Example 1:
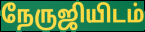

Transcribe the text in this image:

நேருஜியிடம்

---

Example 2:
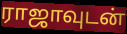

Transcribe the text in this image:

ராஜாவுடன்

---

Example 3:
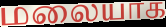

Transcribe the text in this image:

மலையாக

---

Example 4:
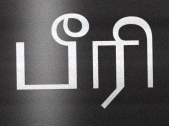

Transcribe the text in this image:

பீரி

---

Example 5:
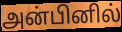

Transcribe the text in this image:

அன்பினில்